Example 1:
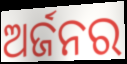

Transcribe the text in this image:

ଅର୍ଜନର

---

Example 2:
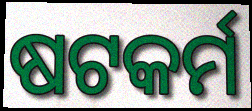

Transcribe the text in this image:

ଷଟକର୍ମ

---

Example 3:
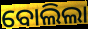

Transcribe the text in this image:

ବୋଲିଲା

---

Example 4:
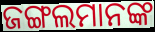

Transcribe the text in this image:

ଜଙ୍ଗଲମାନଙ୍କ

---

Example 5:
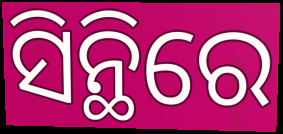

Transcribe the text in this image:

ସିନ୍ଥିରେ